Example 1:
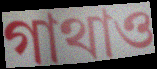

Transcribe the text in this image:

গাথাও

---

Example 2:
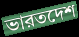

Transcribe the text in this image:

ভারতদেশ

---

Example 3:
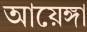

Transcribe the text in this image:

আয়েঙ্গা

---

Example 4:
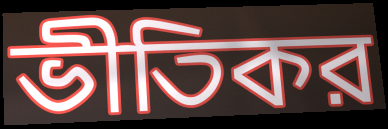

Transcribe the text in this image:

ভীতিকর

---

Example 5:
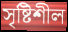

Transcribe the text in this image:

সৃষ্টিশীল